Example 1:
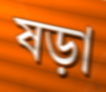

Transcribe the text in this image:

ষড়া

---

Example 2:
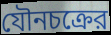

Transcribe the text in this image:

যৌনচক্রের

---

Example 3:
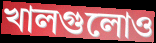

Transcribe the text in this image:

খালগুলোও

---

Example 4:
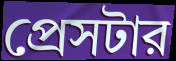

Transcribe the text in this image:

প্রেসটার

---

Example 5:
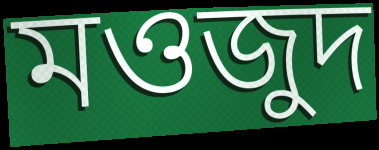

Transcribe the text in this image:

মওজুদ